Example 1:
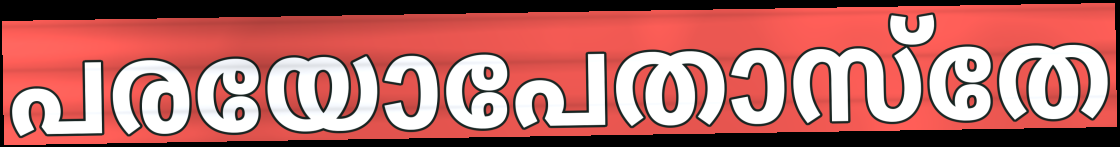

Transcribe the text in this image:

പരയോപേതാസ്തേ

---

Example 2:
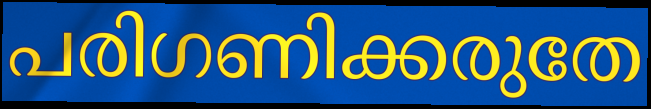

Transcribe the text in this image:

പരിഗണിക്കരുതേ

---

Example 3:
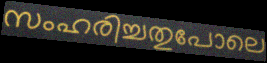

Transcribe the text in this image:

സംഹരിച്ചതുപോലെ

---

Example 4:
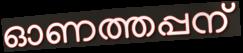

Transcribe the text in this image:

ഓണത്തപ്പന്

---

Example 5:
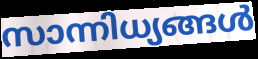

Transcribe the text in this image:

സാന്നിധ്യങ്ങൾ